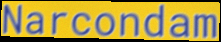
Narcondam